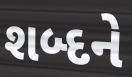
શબ્દને